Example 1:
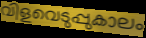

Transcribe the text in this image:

വിളവെടുപ്പുകാലം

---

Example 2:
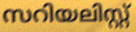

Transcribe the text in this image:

സറിയലിസ്റ്റ്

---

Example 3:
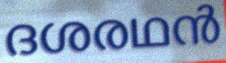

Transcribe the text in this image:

ദശരഥൻ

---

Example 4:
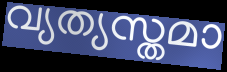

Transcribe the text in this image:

വ്യത്യസ്തമാ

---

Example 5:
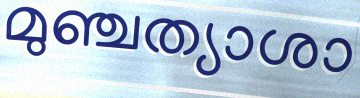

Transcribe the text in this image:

മുഞ്ചത്യാശാ